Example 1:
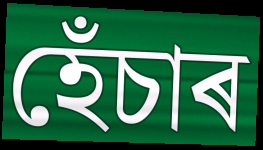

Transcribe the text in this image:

হেঁচাৰ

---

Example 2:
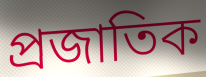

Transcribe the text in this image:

প্ৰজাতিক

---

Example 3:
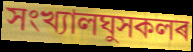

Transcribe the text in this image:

সংখ্যালঘুসকলৰ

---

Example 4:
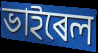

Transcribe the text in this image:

ভাইৰেল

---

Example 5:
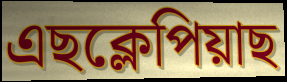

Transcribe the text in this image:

এছক্লেপিয়াছ